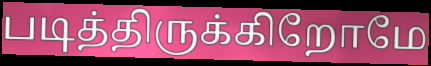
படித்திருக்கிறோமே